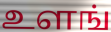
உளங்